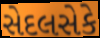
સેદલસેકે